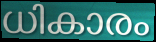
ധികാരം